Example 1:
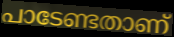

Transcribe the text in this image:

പാടേണ്ടതാണ്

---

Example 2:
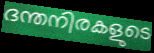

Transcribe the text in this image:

ദന്തനിരകളുടെ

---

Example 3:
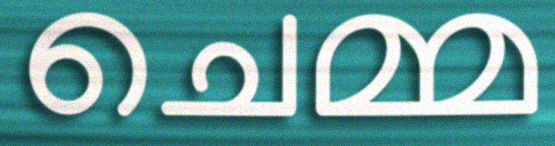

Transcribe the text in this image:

ചെമ്മ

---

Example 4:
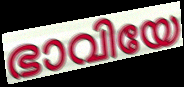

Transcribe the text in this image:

ഭാവിയേ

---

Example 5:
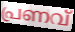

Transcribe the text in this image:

പ്രണവ്